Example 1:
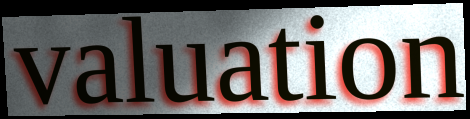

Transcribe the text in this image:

valuation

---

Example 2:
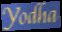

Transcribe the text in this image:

Yodha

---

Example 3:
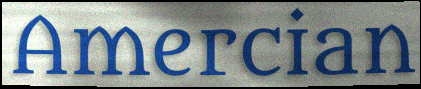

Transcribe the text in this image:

Amercian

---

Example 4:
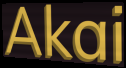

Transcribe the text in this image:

Akai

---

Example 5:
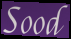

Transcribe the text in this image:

Sood